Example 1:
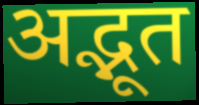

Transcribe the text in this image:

अद्भूत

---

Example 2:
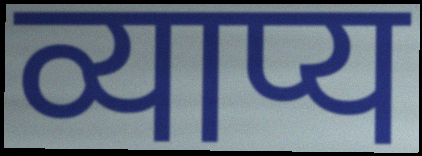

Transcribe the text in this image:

व्याप्य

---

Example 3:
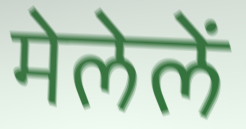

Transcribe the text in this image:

मेलेलें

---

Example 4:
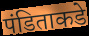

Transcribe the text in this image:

पंडिताकडे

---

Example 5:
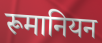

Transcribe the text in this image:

रूमानियन